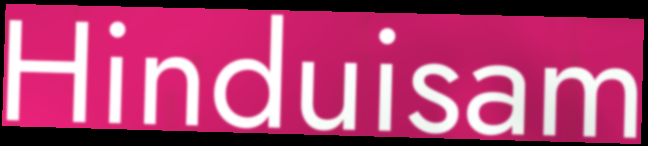
Hinduisam